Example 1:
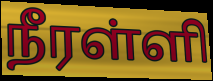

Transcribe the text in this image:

நீரள்ளி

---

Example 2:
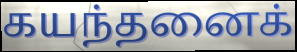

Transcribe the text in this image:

கயந்தனைக்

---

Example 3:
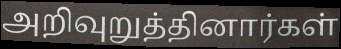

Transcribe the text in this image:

அறிவுறுத்தினார்கள்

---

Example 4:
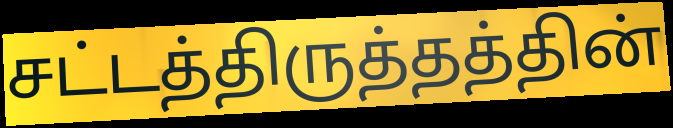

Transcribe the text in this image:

சட்டத்திருத்தத்தின்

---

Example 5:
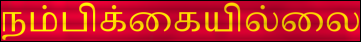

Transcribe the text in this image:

நம்பிக்கையில்லை